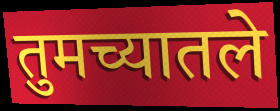
तुमच्यातले